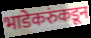
भाडेकरुंकडून